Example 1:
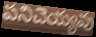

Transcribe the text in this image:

పనిచెయ్యవు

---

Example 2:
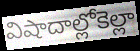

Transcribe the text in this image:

విషాదాల్లోకెల్లా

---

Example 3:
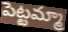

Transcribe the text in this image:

పెట్టమ్మా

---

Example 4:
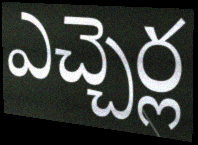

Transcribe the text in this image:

ఎచ్చెర్ల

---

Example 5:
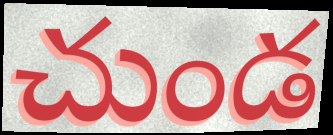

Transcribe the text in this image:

చుండ